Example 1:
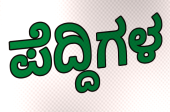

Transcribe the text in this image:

ಪೆದ್ದಿಗಳ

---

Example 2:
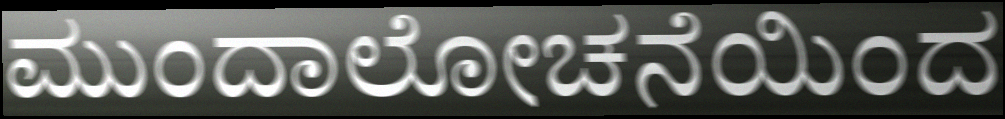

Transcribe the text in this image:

ಮುಂದಾಲೋಚನೆಯಿಂದ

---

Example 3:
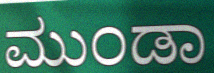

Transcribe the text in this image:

ಮುಂಡಾ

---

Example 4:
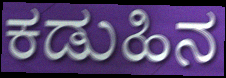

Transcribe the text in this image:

ಕಡುಹಿನ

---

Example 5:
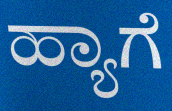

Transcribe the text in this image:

ಹ್ಯಾಗೆ